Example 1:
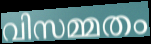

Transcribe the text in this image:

വിസമ്മതം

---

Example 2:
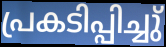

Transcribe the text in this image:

പ്രകടിപ്പിച്ചു്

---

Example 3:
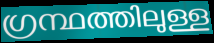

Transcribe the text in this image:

ഗ്രന്ഥത്തിലുള്ള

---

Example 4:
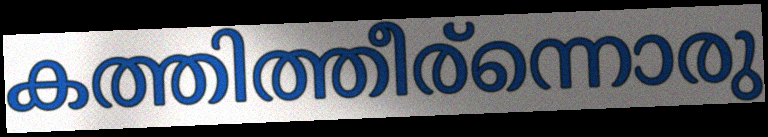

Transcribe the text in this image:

കത്തിത്തീര്ന്നൊരു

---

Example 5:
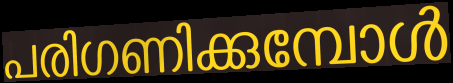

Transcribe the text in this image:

പരിഗണിക്കുമ്പോൾ